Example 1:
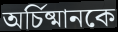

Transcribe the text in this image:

অর্চিষ্মানকে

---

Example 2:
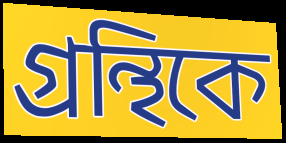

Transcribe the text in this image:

গ্রন্থিকে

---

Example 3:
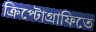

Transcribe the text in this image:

ক্রিপ্টোগ্রাফিতে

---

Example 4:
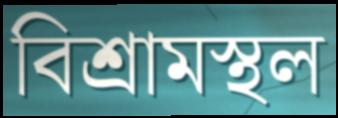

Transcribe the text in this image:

বিশ্রামস্থল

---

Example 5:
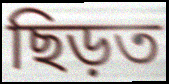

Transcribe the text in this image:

ছিড়ত